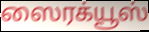
ஸைரக்யூஸ்